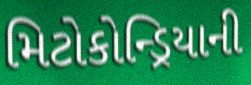
મિટોકોન્ડ્રિયાની